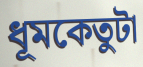
ধূমকেতুটা